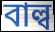
বাল্ব